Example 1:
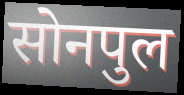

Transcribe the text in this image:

सोनपुल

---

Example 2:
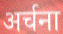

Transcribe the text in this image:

अर्चना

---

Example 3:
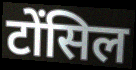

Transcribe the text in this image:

टोंसिल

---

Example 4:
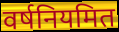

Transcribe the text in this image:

वर्षनियमित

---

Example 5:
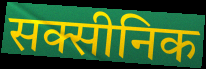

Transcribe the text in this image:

सक्सीनिक